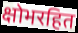
क्षोभरहित